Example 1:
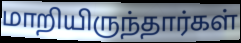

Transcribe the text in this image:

மாறியிருந்தார்கள்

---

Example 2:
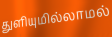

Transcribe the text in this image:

துளியுமில்லாமல்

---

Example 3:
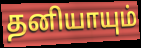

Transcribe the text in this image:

தனியாயும்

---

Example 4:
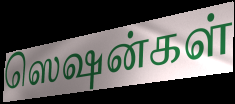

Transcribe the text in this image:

ஸெஷன்கள்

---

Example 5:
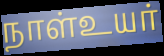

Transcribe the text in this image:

நாள்உயர்